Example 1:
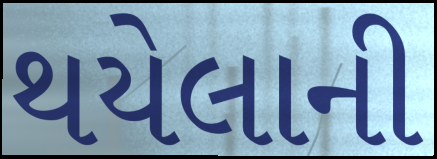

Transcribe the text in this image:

થયેલાની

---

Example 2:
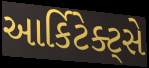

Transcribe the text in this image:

આર્કિટેક્ટ્સે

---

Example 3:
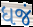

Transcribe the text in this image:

ધજં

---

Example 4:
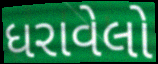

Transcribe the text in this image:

ધરાવેલો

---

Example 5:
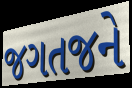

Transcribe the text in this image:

જગતજને